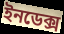
ইনডেক্স